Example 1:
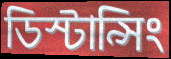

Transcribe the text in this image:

ডিস্টান্সিং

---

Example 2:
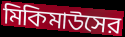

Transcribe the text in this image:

মিকিমাউসের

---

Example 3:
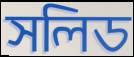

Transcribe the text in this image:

সলিড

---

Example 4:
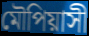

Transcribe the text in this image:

মৌপিয়াসী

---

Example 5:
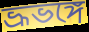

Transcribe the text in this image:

ভ্রূভঙ্গে